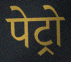
पेट्रो